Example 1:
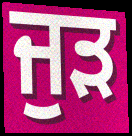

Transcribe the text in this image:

ਜੁੜ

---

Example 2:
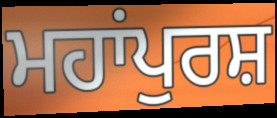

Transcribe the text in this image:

ਮਹਾਂਪੁਰਸ਼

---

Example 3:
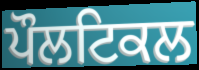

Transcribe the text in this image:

ਪੌਲਟਿਕਲ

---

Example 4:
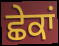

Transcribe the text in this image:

ਛੇਕਾਂ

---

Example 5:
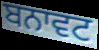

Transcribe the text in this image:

ਬਨਾਵਟ